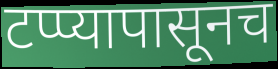
टप्प्यापासूनच